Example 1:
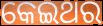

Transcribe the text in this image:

କେଇଥର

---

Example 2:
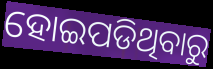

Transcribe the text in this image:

ହୋଇପଡିଥିବାରୁ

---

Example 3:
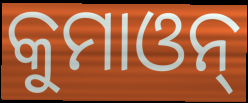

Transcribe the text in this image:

କୁମାଓନ୍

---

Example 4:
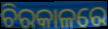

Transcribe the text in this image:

ଚିରକାଳରେ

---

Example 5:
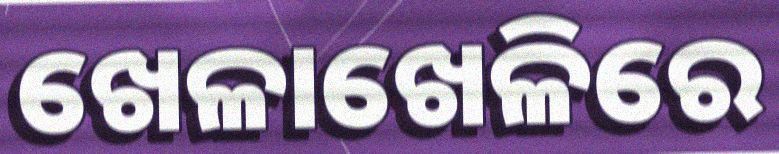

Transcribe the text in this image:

ଖେଳାଖେଳିରେ